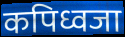
कपिध्वजा